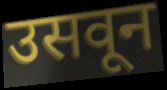
उसवून